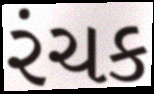
રંચક